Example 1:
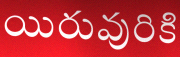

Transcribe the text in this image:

యిరువురికి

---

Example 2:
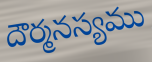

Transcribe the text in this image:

దౌర్మనస్యము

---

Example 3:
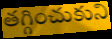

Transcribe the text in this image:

తగ్గించుకుని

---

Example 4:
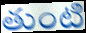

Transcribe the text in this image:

తుంటి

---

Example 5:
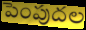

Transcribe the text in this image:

పెంపుదల